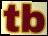
tb